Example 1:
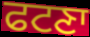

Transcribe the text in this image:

ਫਟਣਾ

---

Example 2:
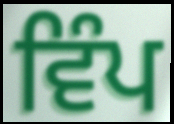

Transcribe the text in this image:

ਵਿੰਪ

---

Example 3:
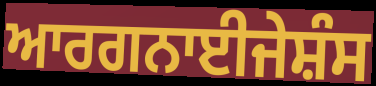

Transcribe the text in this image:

ਆਰਗਨਾਈਜੇਸ਼ੰਸ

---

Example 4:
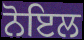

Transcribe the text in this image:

ਨੋਇਲ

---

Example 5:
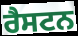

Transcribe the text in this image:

ਰੈਸਟਨ